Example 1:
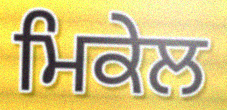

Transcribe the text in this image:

ਮਿਕੇਲ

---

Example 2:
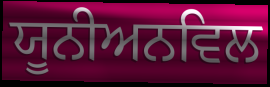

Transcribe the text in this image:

ਯੂਨੀਅਨਵਿਲ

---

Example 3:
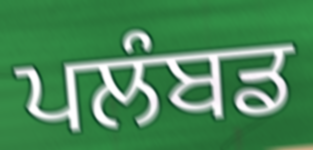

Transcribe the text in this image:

ਪਲੰਬਡ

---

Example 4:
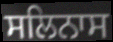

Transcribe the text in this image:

ਸਲਿਨਾਸ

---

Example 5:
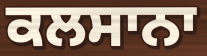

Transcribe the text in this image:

ਕਲਸਾਨਾ